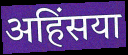
अहिंसया